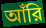
আঁরি